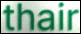
thair